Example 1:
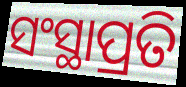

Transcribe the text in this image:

ସଂସ୍ଥାପ୍ରତି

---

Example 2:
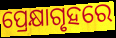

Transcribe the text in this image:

ପ୍ରେକ୍ଷାଗୃହରେ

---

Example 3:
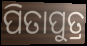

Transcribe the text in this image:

ପିତାପୁତ୍ର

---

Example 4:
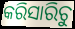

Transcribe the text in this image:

କରିସାରିଚୁ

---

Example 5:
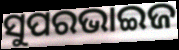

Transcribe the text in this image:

ସୁପରଭାଇଜ